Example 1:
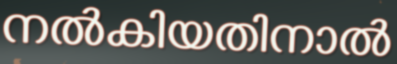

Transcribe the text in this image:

നൽകിയതിനാൽ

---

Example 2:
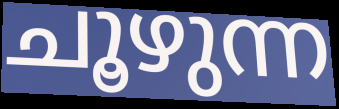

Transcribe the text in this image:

ചൂഴുന്ന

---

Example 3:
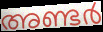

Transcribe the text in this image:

അണ്ടർ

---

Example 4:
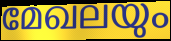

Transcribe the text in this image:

മേഖലയും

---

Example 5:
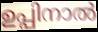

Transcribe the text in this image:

ഉപ്പിനാൽ